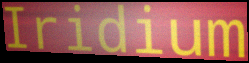
Iridium